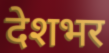
देशभर